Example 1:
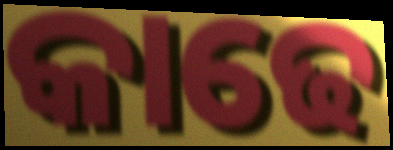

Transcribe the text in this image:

କାଢେ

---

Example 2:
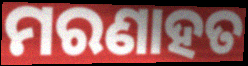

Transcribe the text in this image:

ମରଣାହତ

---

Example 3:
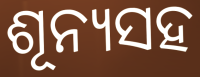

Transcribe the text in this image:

ଶୂନ୍ୟସହ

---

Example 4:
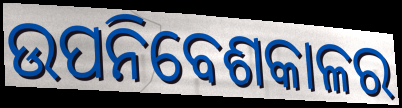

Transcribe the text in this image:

ଉପନିବେଶକାଳର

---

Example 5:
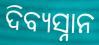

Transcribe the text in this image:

ଦିବ୍ୟସ୍ନାନ